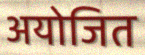
अयोजित